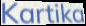
Kartika